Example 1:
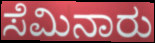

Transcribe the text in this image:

ಸೆಮಿನಾರು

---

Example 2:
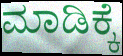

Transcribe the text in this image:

ಮಾಡಿಕ್ಕೆ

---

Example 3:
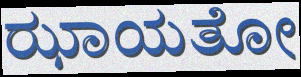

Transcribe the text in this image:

ಝಾಯತೋ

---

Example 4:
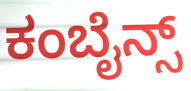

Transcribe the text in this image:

ಕಂಬೈನ್ಸ್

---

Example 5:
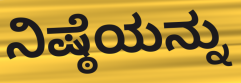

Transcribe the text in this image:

ನಿಷ್ಠೆಯನ್ನು